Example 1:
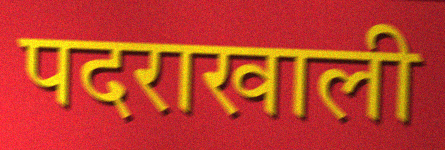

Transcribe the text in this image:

पदराखाली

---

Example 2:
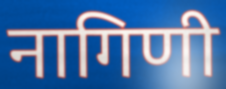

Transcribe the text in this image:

नागिणी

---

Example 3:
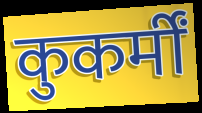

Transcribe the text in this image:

कुकर्मीं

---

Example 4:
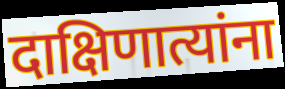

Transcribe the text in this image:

दाक्षिणात्यांना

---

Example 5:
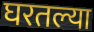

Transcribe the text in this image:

घरतल्या